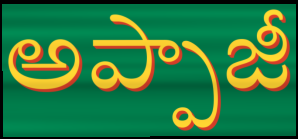
అప్పాజీ